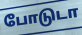
போடுடா